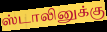
ஸ்டாலினுக்கு